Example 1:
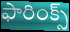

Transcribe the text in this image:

ఫారింక్స్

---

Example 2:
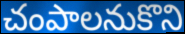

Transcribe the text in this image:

చంపాలనుకొని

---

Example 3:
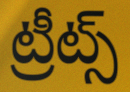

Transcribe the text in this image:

ట్రీట్స్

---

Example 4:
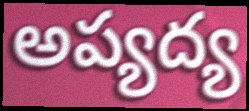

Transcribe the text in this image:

అప్యద్య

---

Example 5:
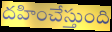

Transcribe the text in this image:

దహించేస్తుంది